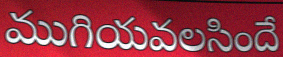
ముగియవలసిందే